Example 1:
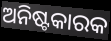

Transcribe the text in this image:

ଅନିଷ୍ଟକାରକ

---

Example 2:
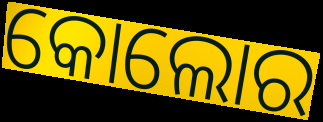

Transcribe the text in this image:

କୋଲୋର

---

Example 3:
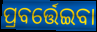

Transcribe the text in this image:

ପ୍ରବର୍ତ୍ତେଇବା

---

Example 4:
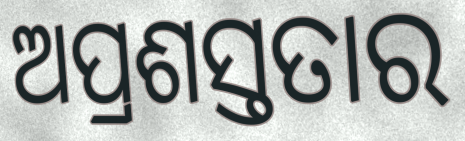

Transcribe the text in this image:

ଅପ୍ରଶସ୍ତତାର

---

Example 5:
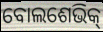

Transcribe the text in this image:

ବୋଲଶେଭିକ୍